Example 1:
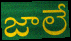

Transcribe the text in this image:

జాలే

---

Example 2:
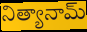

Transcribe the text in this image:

నిత్యానామ్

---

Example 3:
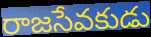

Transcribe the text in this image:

రాజసేవకుడు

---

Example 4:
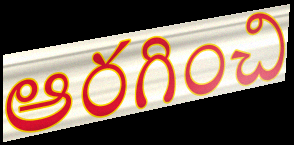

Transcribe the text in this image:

ఆరగించి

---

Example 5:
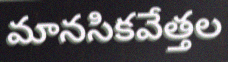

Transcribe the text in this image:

మానసికవేత్తల